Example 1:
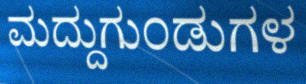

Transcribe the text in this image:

ಮದ್ದುಗುಂಡುಗಳ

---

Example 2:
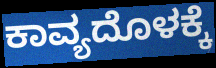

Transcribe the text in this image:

ಕಾವ್ಯದೊಳಕ್ಕೆ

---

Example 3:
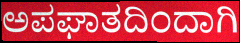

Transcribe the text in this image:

ಅಪಘಾತದಿಂದಾಗಿ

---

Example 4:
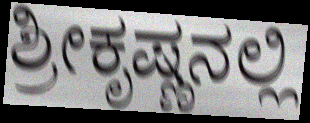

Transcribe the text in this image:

ಶ್ರೀಕೃಷ್ಣನಲ್ಲಿ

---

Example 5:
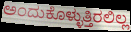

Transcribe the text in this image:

ಅಂದುಕೊಳ್ಳುತ್ತಿರಲಿಲ್ಲ